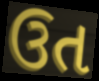
ઉત